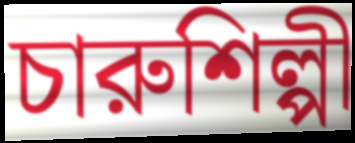
চারুশিল্পী